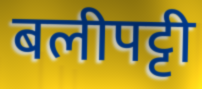
बलीपट्टी